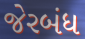
જેરબંધ